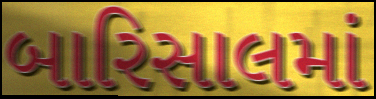
બારિસાલમાં